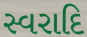
સ્વરાદિ